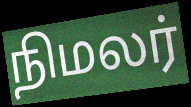
நிமலர்